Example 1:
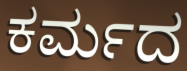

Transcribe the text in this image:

ಕರ್ಮದ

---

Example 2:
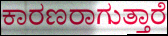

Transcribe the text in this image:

ಕಾರಣರಾಗುತ್ತಾರೆ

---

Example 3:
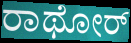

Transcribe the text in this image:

ರಾಥೋರ್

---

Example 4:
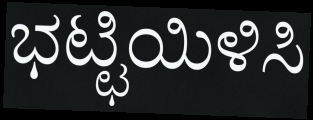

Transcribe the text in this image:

ಭಟ್ಟಿಯಿಳಿಸಿ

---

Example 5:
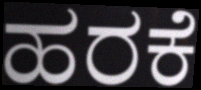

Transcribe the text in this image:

ಹರಕೆ